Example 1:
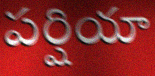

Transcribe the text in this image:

పర్షియా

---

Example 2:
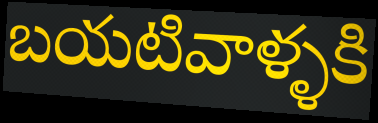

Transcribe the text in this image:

బయటివాళ్ళకి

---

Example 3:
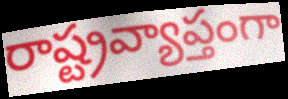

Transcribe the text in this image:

రాష్ట్రవ్యాప్తంగా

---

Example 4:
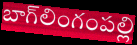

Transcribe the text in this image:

బాగ్‌లింగంపల్లి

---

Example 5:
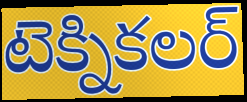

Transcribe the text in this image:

టెక్నికలర్